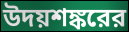
উদয়শঙ্করের